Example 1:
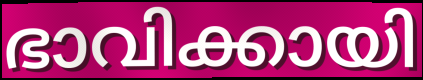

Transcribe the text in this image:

ഭാവിക്കായി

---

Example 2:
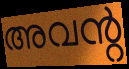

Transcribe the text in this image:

അവന്റ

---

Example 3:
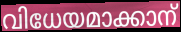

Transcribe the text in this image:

വിധേയമാക്കാന്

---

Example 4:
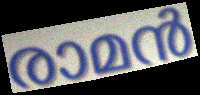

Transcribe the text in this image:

രാമൻ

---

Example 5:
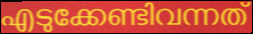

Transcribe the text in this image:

എടുക്കേണ്ടിവന്നത്